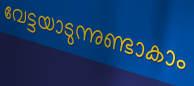
വേട്ടയാടുന്നുണ്ടാകാം